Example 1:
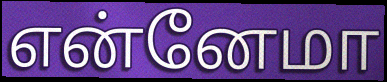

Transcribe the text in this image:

என்னேமா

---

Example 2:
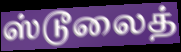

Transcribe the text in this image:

ஸ்டூலைத்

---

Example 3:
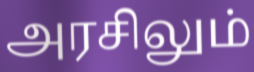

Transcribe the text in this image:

அரசிலும்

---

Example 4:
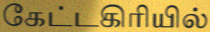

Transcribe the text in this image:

கேட்டகிரியில்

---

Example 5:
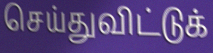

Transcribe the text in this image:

செய்துவிட்டுக்